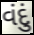
વંદું